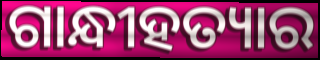
ଗାନ୍ଧୀହତ୍ୟାର